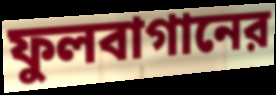
ফুলবাগানের